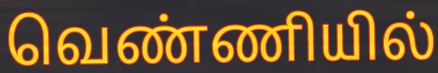
வெண்ணியில்